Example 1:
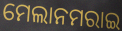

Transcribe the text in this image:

ମେଲାନମରାଇ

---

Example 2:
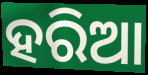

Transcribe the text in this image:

ହରିଆ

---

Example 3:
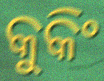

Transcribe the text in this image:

କୁକିଂ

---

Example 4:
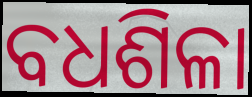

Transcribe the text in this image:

ବଧଶିଳା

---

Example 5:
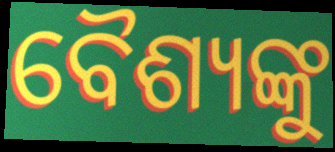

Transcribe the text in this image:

ବୈଶ୍ୟଙ୍କୁ